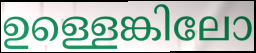
ഉള്ളെങ്കിലോ